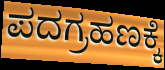
ಪದಗ್ರಹಣಕ್ಕೆ